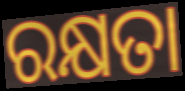
ରକ୍ଷତା